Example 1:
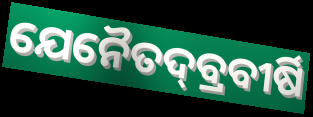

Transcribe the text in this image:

ଯେନୈତଦ୍‌ବ୍ରବୀର୍ଷି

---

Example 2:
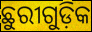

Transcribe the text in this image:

ଛୁରୀଗୁଡ଼ିକ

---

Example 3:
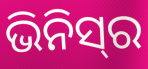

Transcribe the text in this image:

ଭିନିସ୍‌ର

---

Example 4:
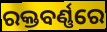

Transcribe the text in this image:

ରକ୍ତବର୍ଣ୍ଣରେ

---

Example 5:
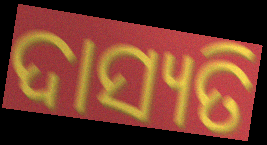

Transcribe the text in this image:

ଦାସ୍ୟତି